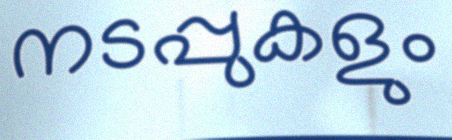
നടപ്പുകളും